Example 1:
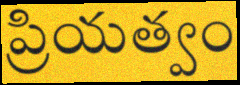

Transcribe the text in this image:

ప్రియత్వం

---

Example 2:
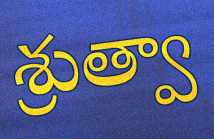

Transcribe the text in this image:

శ్రుత్వా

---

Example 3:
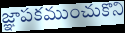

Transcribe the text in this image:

జ్ఞాపకముంచుకొని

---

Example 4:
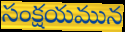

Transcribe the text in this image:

సంక్షయమున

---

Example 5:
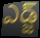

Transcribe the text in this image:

ఎడ్జ్